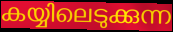
കയ്യിലെടുക്കുന്ന